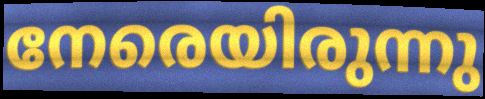
നേരെയിരുന്നു